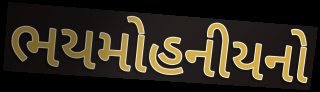
ભયમોહનીયનો